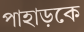
পাহাড়কে